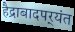
हैद्राबादपर्यंत